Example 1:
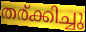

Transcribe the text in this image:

തര്ക്കിച്ചു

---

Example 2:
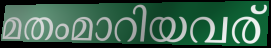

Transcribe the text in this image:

മതംമാറിയവര്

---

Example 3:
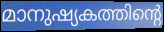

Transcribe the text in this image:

മാനുഷ്യകത്തിന്റെ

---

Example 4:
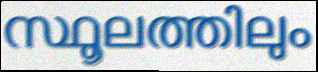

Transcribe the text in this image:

സ്ഥൂലത്തിലും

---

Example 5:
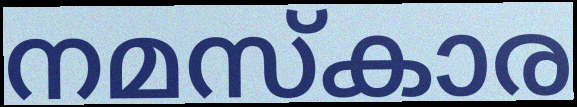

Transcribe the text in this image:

നമസ്കാര